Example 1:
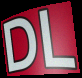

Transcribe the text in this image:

DL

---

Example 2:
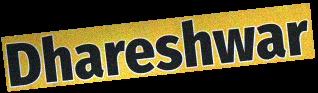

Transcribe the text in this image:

Dhareshwar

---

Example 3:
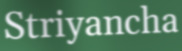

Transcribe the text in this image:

Striyancha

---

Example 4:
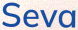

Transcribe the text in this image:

Seva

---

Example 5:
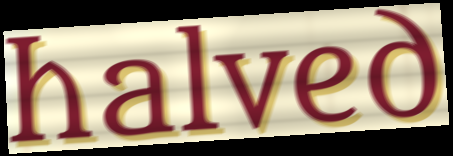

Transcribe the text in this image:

halved